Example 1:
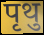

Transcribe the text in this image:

पृथु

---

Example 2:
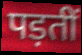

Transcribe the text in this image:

पड़तीं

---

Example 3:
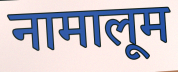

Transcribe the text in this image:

नामालूम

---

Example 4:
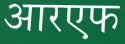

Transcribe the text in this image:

आरएफ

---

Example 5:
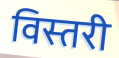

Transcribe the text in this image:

विस्तरी